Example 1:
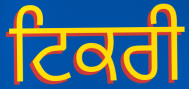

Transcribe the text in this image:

ਟਿਕਰੀ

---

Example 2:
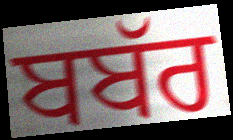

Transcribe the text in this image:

ਬਬੱਰ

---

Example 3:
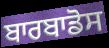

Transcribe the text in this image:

ਬਾਰਬਾਡੋਸ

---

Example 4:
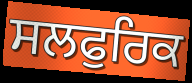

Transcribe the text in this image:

ਸਲਫੁਰਿਕ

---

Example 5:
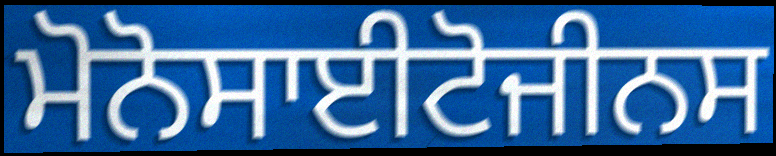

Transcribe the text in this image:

ਮੋਨੋਸਾਈਟੋਜੀਨਸ